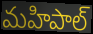
మహిపాల్